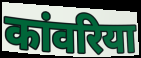
कांवरिया